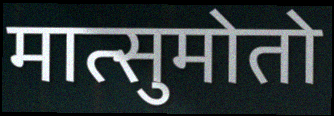
मात्सुमोतो